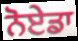
ਨੋਏਡਾ